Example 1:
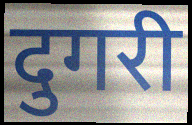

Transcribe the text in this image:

दुगरी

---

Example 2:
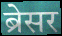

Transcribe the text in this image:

ब्रेसर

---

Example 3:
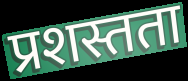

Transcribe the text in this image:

प्रशस्तता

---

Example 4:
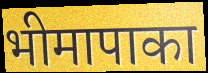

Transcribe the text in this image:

भीमापाका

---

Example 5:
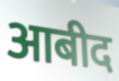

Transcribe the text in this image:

आबीद